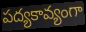
పద్యకావ్యంగా